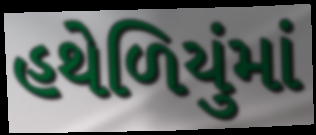
હથેળિયુંમાં